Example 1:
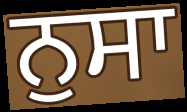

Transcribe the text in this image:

ਨੁਸਾ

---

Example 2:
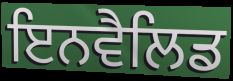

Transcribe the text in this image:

ਇਨਵੈਲਿਡ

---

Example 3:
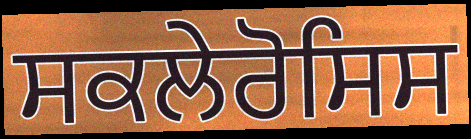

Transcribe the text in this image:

ਸਕਲੇਰੋਸਿਸ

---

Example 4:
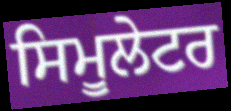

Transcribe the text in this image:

ਸਿਮੂਲੇਟਰ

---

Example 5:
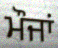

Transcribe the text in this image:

ਮੌਜਾਂ